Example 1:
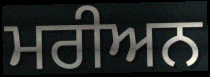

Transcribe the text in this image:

ਮਰੀਅਨ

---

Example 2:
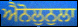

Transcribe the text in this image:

ਐਨੋਲੁਨੁਲਾ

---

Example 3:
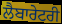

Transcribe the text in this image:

ਲੈਬਾਰੇਟਰੀ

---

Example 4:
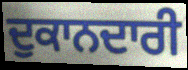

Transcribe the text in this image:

ਦੁਕਾਨਦਾਰੀ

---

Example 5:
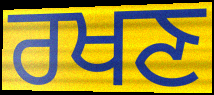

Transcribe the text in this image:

ਰਖਣ